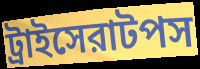
ট্রাইসেরাটপস